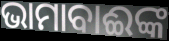
ଭାମାବାଈଙ୍କ